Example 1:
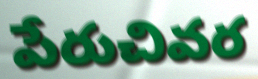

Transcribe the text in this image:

పేరుచివర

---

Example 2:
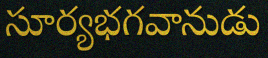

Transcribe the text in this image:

సూర్యభగవానుడు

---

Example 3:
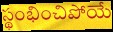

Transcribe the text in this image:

స్థంభించిపోయే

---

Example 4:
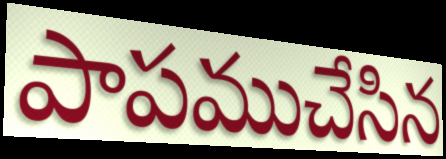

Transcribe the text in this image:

పాపముచేసిన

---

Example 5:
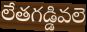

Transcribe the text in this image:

లేతగడ్డివలె